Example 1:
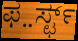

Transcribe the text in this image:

ಫ಼ರ್ಸ್ಟ್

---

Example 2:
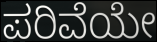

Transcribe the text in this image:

ಪರಿವೆಯೇ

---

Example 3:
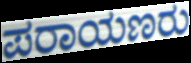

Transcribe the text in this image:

ಪರಾಯಣರು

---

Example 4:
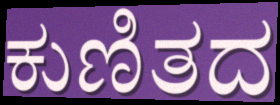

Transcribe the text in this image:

ಕುಣಿತದ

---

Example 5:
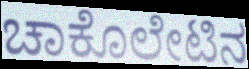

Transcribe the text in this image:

ಚಾಕೊಲೇಟಿನ